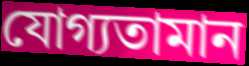
যোগ্যতামান